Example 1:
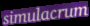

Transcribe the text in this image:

simulacrum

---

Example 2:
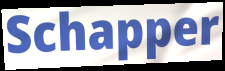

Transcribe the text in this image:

Schapper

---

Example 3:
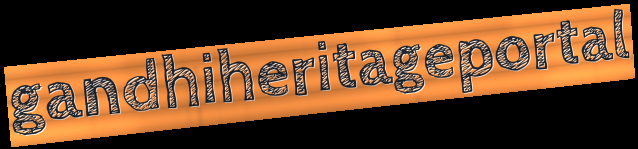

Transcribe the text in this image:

gandhiheritageportal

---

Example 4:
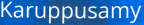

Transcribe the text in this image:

Karuppusamy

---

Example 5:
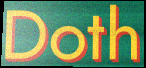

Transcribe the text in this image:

Doth